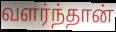
வளர்ந்தான்